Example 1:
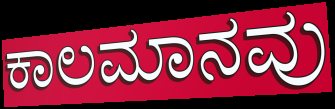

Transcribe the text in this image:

ಕಾಲಮಾನವು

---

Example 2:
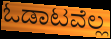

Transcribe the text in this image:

ಓಡಾಟವೆಲ್ಲ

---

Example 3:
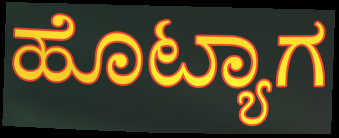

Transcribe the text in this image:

ಹೊಟ್ಯಾಗ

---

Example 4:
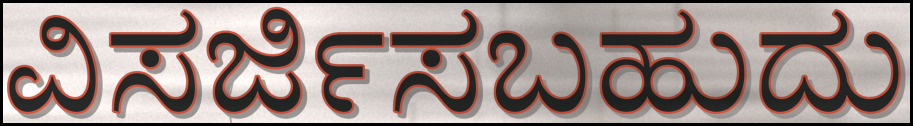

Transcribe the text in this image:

ವಿಸರ್ಜಿಸಬಹುದು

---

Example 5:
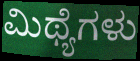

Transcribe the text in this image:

ಮಿಥ್ಯೆಗಳು